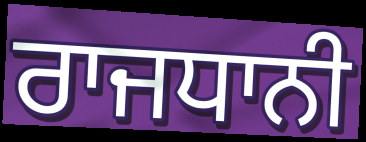
ਰਾਜਧਾਨੀ